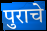
पुराचे